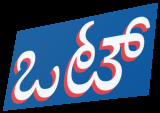
ಒಟ್